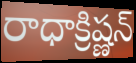
రాధాక్రిష్ణన్